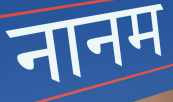
नानम